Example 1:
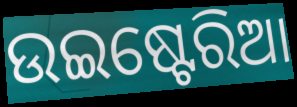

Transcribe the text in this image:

ଉଇଷ୍ଟେରିଆ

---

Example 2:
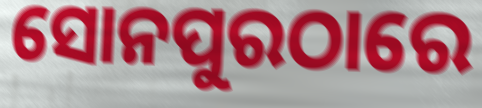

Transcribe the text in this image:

ସୋନପୁରଠାରେ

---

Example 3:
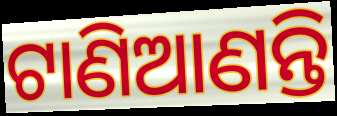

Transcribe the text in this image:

ଟାଣିଆଣନ୍ତି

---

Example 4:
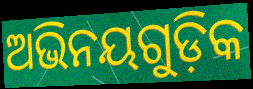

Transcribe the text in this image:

ଅଭିନୟଗୁଡ଼ିକ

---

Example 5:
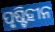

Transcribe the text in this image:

ପୃଷ୍ଟିହୀନ